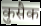
कुसैक